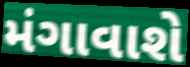
મંગાવાશે